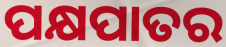
ପକ୍ଷପାତର